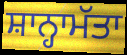
ਸ਼ਾਨ੍ਹਾਮੱਤਾ